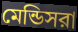
মেন্ডিসরা